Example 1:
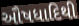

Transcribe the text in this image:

ઔષધાદિથી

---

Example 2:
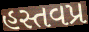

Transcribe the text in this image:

હસ્તવપ્ર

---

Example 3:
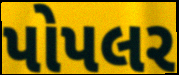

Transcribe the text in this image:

પોપલર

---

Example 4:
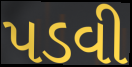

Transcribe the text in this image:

પડવી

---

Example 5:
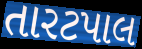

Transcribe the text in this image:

તારટપાલ